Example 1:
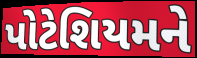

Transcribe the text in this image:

પોટેશિયમને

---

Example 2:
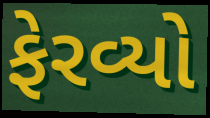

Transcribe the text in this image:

ફેરવ્યો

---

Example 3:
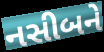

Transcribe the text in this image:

નસીબને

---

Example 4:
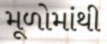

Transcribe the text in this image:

મૂળોમાંથી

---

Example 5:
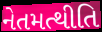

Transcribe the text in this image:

નેતમત્થીતિ